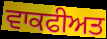
ਵਾਕਫੀਅਤ